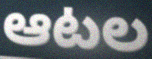
ఆటల